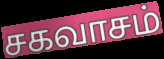
சகவாசம்